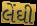
લેંઘી